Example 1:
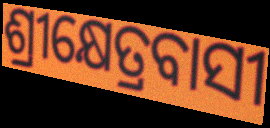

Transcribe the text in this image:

ଶ୍ରୀକ୍ଷେତ୍ରବାସୀ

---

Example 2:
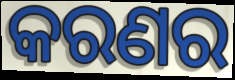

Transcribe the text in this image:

କରଣର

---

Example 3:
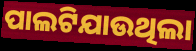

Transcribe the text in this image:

ପାଲଟିଯାଉଥିଲା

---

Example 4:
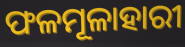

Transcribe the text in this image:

ଫଳମୂଳାହାରୀ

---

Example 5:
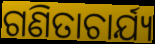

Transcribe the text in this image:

ଗଣିତାଚାର୍ଯ୍ୟ